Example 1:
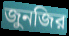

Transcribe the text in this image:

জুনজির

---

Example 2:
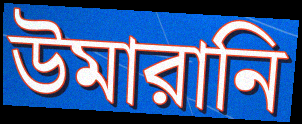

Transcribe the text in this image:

উমারানি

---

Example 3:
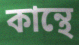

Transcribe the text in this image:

কান্থে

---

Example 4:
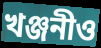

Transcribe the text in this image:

খঞ্জনীও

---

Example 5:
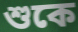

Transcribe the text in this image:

শুকে